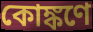
কোঙ্কণে